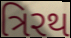
ત્રિરથ